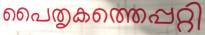
പൈതൃകത്തെപ്പറ്റി